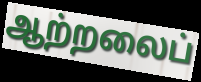
ஆற்றலைப்